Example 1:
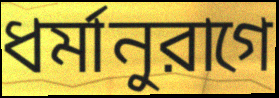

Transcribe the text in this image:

ধর্মানুরাগে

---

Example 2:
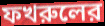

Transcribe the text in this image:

ফখরুলের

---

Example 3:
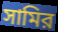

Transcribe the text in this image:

সামির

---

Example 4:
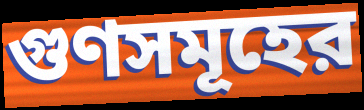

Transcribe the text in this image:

গুণসমূহের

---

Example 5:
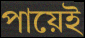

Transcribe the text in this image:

পায়েই